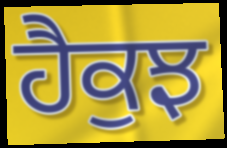
ਹੈਕੁਝ